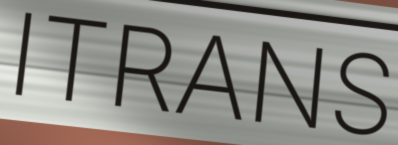
ITRANS